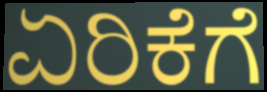
ಏರಿಕೆಗೆ